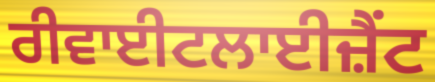
ਰੀਵਾਈਟਲਾਈਜ਼ੈਂਟ